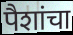
पैशांचा